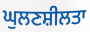
ਘੁਲਣਸ਼ੀਲਤਾ